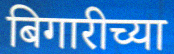
बिगारीच्या